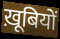
ख़ूबियों